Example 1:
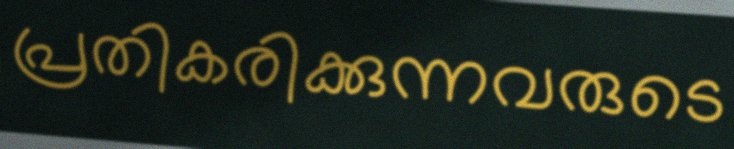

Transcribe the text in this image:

പ്രതികരിക്കുന്നവരുടെ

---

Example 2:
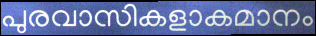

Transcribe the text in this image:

പുരവാസികളാകമാനം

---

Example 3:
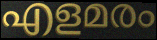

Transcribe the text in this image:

എളമരം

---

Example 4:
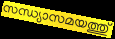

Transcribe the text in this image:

സന്ധ്യാസമയത്തു്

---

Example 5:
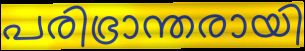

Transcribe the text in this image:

പരിഭ്രാന്തരായി